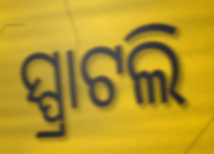
ସ୍ପ୍ରାଟଲି